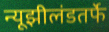
न्यूझीलंडतर्फे